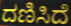
ದಣಿಸಿದೆ